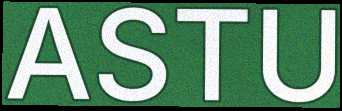
ASTU